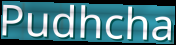
Pudhcha